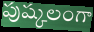
పుష్కలంగా